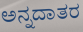
ಅನ್ನದಾತರ